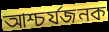
আশ্চৰ্যজনক